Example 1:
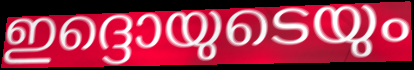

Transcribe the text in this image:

ഇദ്ദൊയുടെയും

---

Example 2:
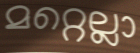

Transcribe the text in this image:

മറ്റെല്ലാ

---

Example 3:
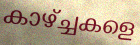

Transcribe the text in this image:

കാഴ്ച്ചകളെ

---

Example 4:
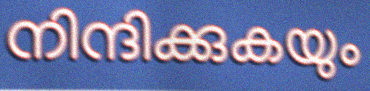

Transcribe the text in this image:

നിന്ദിക്കുകയും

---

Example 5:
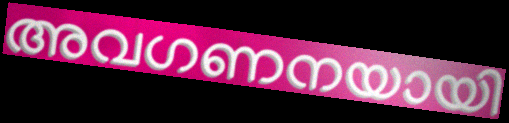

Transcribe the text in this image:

അവഗണനയായി